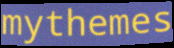
mythemes